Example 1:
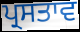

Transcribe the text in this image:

ਪ੍ਰਸਤਾਵ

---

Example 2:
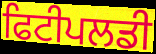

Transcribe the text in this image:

ਫਿਟੀਪਲਡੀ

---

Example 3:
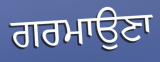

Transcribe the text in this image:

ਗਰਮਾਉਣਾ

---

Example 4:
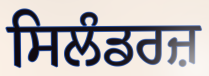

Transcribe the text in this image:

ਸਿਲੰਡਰਜ਼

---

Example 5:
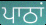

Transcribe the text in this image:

ਪਾਠਾਂ